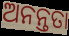
ଅନନ୍ତତା